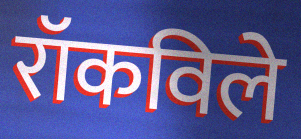
रॉकविले